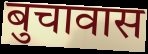
बुचावास